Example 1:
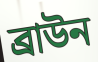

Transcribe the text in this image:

ব্ৰাউন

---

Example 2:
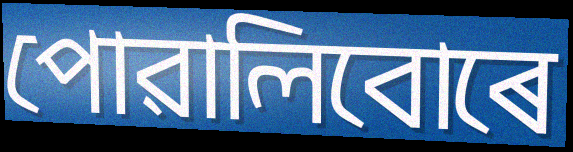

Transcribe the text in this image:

পোৱালিবোৰে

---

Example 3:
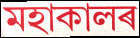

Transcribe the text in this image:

মহাকালৰ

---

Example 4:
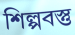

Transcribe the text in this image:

শিল্পবস্তু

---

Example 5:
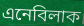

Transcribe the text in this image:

এনেবিলাক